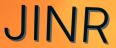
JINR